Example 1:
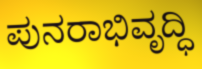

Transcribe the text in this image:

ಪುನರಾಭಿವೃದ್ಧಿ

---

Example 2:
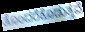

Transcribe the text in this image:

ತೊಂದರೆಕೊಡುತ್ತವೆ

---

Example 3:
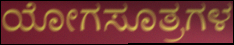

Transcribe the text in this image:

ಯೋಗಸೂತ್ರಗಳ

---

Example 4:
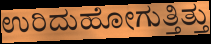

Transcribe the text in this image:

ಉರಿದುಹೋಗುತ್ತಿತ್ತು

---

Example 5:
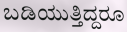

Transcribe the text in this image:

ಬಡಿಯುತ್ತಿದ್ದರೂ